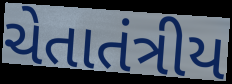
ચેતાતંત્રીય